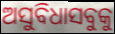
ଅସୁବିଧାସବୁକୁ